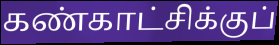
கண்காட்சிக்குப்